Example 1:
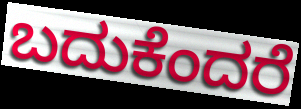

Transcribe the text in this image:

ಬದುಕೆಂದರೆ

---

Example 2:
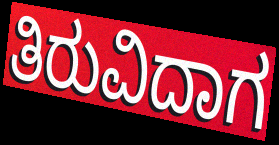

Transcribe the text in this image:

ತಿರುವಿದಾಗ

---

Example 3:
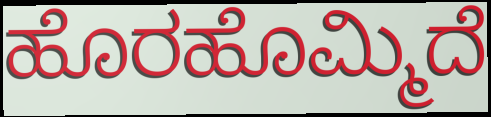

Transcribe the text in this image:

ಹೊರಹೊಮ್ಮಿದೆ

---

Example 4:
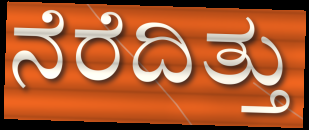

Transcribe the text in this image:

ನೆರೆದಿತ್ತು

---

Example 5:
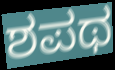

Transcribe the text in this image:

ಶಪಥ